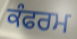
ਕੰਫਰਮ